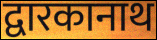
द्वारकानाथ